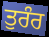
ਤੁਰੰਰ